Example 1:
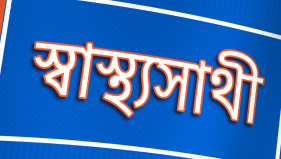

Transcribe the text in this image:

স্বাস্থ্যসাথী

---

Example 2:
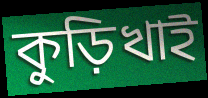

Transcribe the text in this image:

কুড়িখাই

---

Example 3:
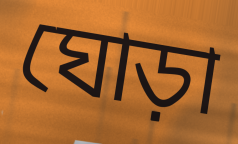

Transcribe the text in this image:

ঘোড়া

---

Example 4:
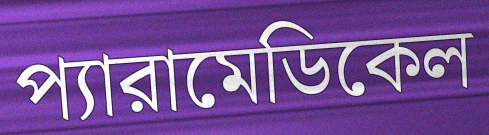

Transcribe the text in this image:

প্যারামেডিকেল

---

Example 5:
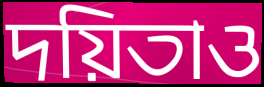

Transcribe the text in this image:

দয়িতাও